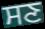
ਸਣ